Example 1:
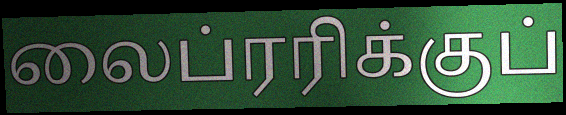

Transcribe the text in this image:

லைப்ரரிக்குப்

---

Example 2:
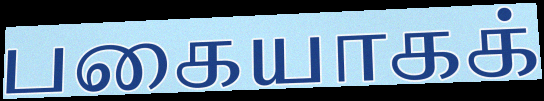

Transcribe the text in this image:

பகையாகக்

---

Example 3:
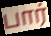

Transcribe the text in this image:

பார்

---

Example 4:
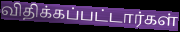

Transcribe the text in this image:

விதிக்கப்பட்டார்கள்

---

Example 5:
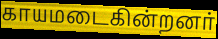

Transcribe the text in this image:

காயமடைகின்றனர்